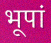
भूपां